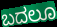
ಬದಲೂ